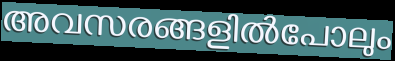
അവസരങ്ങളിൽപോലും